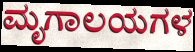
ಮೃಗಾಲಯಗಳ